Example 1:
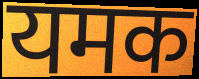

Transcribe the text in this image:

यमक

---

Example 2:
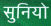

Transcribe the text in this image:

सुनियो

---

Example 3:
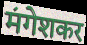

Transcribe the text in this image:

मंगेशकर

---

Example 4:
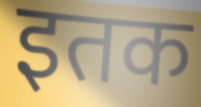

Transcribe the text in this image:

इतक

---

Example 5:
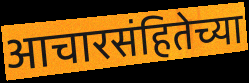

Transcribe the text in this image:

आचारसंहितेच्या